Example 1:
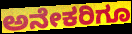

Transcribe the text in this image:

ಅನೇಕರಿಗೂ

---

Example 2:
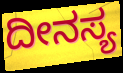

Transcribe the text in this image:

ದೀನಸ್ಯ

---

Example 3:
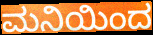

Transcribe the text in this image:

ಮನಿಯಿಂದ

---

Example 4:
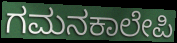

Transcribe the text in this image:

ಗಮನಕಾಲೇಪಿ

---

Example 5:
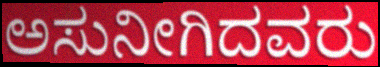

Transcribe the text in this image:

ಅಸುನೀಗಿದವರು